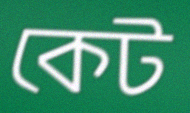
কেট